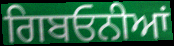
ਗਿਬਓਨੀਆਂ